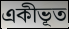
একীভূত